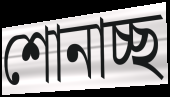
শোনাচ্ছ